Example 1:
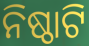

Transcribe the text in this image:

ନିଷ୍ଠାଟି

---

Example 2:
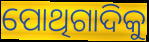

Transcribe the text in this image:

ପୋଥିଗାଦିକୁ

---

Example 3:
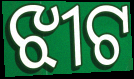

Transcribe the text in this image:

ଝୀଟ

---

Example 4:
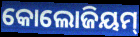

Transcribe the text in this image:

କୋଲୋଜିୟମ୍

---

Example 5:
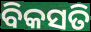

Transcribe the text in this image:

ବିକସତି